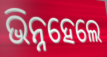
ଭିନ୍ନହେଲେ